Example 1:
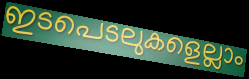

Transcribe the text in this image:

ഇടപെടലുകളെല്ലാം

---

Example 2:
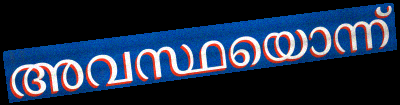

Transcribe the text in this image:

അവസ്ഥയൊന്ന്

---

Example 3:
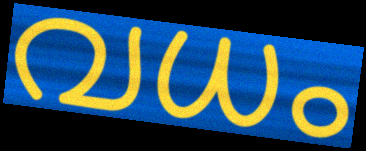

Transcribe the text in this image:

വധം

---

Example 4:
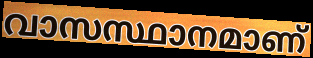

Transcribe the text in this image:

വാസസ്ഥാനമാണ്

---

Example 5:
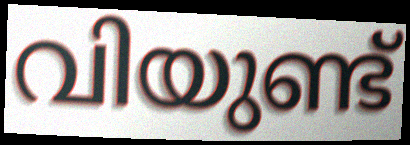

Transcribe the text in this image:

വിയുണ്ട്